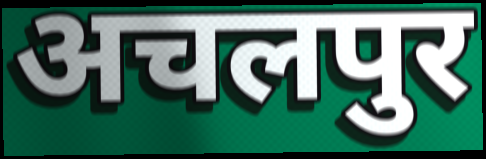
अचलपुर